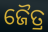
ଜୈତ୍ର